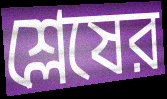
শ্লেষের